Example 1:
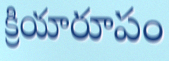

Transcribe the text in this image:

క్రియారూపం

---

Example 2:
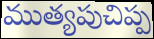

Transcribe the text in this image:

ముత్యపుచిప్ప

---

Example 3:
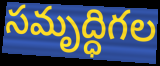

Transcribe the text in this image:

సమృద్ధిగల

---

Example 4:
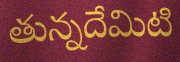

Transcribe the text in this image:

తున్నదేమిటి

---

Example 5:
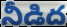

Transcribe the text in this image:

నీడిద